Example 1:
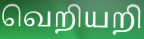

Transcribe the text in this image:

வெறியறி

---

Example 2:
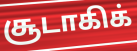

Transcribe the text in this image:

சூடாகிக்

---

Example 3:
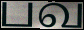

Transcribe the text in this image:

பவ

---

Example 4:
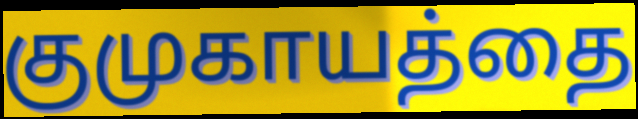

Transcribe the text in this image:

குமுகாயத்தை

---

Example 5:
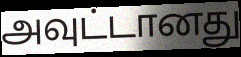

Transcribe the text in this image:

அவுட்டானது